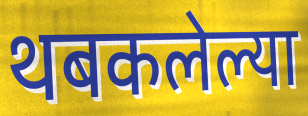
थबकलेल्या